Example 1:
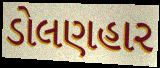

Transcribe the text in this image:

ડોલણહાર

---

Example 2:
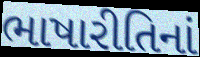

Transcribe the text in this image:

ભાષારીતિનાં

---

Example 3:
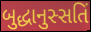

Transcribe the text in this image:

બુદ્ધાનુસ્સતિં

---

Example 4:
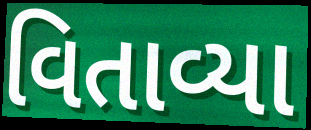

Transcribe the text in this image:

વિતાવ્યા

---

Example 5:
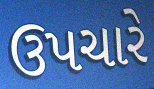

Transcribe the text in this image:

ઉપચારે